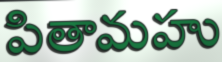
పితామహు